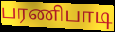
பரணிபாடி